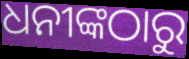
ଧନୀଙ୍କଠାରୁ